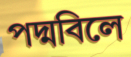
পদ্মবিলে